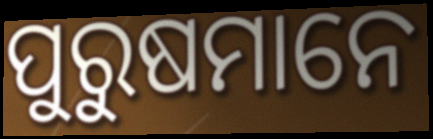
ପୁରୁଷମାନେ